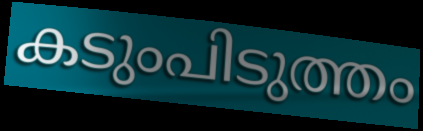
കടുംപിടുത്തം